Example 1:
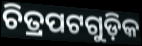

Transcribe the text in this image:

ଚିତ୍ରପଟଗୁଡ଼ିକ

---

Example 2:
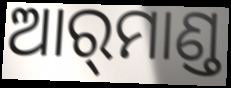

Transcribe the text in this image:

ଆର୍‌ମାଣ୍ଡ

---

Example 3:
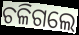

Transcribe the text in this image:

ଚଳିଗଲେ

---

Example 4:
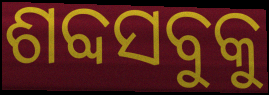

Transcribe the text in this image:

ଶବ୍ଦସବୁକୁ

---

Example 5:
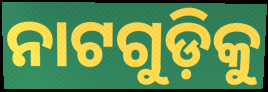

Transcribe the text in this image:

ନାଟଗୁଡ଼ିକୁ